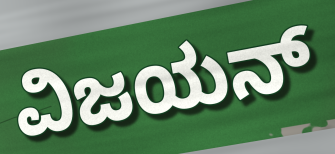
ವಿಜಯನ್